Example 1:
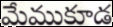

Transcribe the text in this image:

మేముకూడ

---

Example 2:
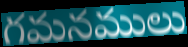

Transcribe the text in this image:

గమనములు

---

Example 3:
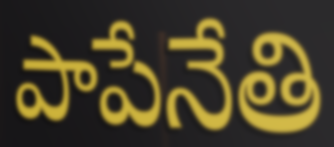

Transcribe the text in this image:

పాపేనేతి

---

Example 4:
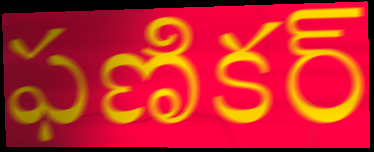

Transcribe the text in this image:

ఫణికర్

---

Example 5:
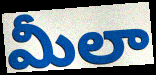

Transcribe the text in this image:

మీలా